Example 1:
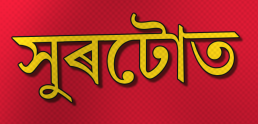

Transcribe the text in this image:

সুৰটোত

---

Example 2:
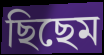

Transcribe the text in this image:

ছিছেম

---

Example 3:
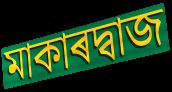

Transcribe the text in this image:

মাকাৰদ্বাজ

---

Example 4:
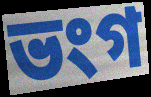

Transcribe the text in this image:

ভংগ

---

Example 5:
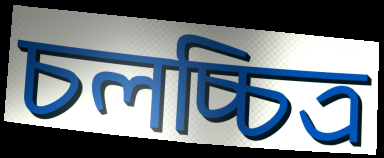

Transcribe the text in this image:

চলচ্চিত্ৰ